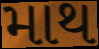
માથ